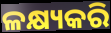
ଳକ୍ଷ୍ୟକରି